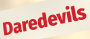
Daredevils